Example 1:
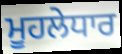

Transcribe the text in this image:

ਮੂਹਲੇਧਾਰ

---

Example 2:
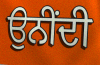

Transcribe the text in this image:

ਉਨੀਂਦੀ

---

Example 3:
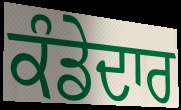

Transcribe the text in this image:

ਕੰਡੇਦਾਰ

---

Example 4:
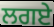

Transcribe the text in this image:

ਲਗਏ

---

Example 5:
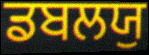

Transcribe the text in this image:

ਡਬਲਯੁ